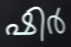
ഷിർ